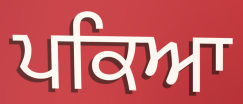
ਪਕਿਆ